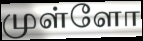
முள்ளோ